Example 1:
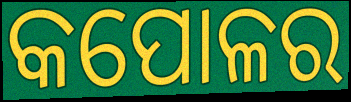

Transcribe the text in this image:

କପୋଳର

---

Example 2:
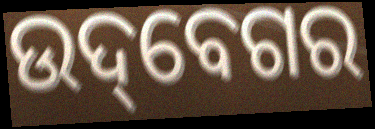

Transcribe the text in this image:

ଉଦ୍‌ବେଗର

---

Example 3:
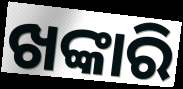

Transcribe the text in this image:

ଖଙ୍କାରି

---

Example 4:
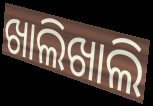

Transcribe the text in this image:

ଖାଲିଖାଲି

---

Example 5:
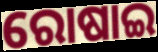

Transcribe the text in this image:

ରୋଷାଇ